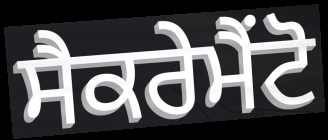
ਸੈਕਰੇਮੈਂਟੋ